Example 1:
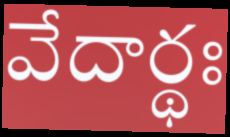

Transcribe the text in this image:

వేదార్థః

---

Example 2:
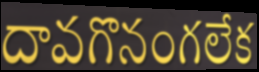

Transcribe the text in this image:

దావగొనంగలేక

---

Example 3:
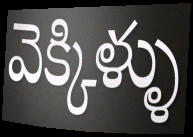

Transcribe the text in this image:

వెక్కిళ్ళు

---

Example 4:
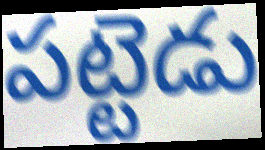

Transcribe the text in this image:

పట్టెడు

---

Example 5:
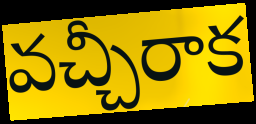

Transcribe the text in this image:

వచ్చీరాక